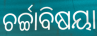
ଚର୍ଚ୍ଚାବିଷୟା